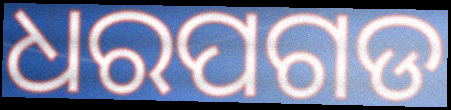
ଧରପଗଡ